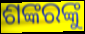
ଶଙ୍କରଙ୍କୁ